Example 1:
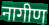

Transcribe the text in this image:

नागीण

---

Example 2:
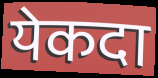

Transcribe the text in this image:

येकदा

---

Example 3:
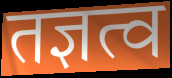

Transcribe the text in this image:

तज्ञत्व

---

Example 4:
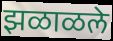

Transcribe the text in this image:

झळाळले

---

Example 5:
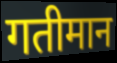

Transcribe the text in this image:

गतीमान